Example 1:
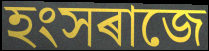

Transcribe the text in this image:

হংসৰাজে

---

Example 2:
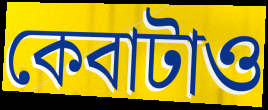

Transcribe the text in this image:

কেবাটাও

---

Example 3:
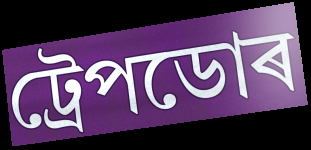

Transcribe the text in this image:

ট্ৰেপডোৰ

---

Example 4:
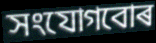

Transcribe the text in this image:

সংযোগবোৰ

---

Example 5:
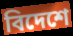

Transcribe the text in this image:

বিদেশে